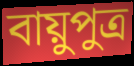
বায়ুপুত্র